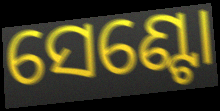
ସେଣ୍ଟୋ